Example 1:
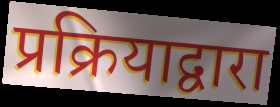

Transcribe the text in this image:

प्रक्रियाद्वारा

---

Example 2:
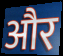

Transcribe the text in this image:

और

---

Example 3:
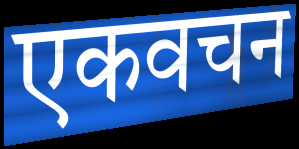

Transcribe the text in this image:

एकवचन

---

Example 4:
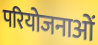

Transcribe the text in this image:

परियोजनाओं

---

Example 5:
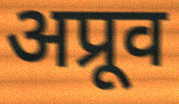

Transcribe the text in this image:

अप्रूव